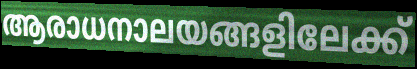
ആരാധനാലയങ്ങളിലേക്ക്